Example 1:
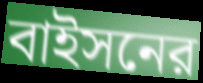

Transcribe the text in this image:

বাইসনের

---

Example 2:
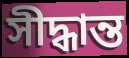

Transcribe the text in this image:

সীদ্ধান্ত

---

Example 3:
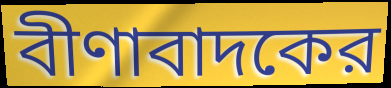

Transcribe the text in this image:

বীণাবাদকের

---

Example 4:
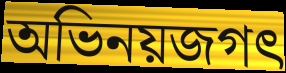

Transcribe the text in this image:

অভিনয়জগৎ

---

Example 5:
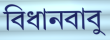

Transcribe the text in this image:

বিধানবাবু